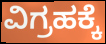
ವಿಗ್ರಹಕ್ಕೆ